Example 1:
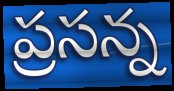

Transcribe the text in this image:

ప్రసన్న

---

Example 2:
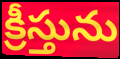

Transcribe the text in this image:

క్రీస్తును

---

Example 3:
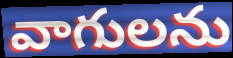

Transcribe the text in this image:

వాగులను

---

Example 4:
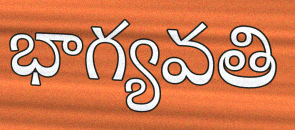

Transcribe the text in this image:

భాగ్యవతి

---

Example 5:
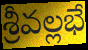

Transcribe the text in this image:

శ్రీవల్లభే